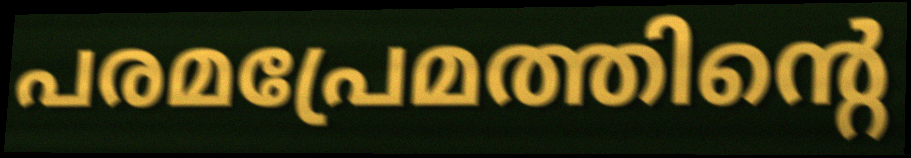
പരമപ്രേമത്തിന്റെ